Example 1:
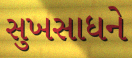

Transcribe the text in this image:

સુખસાધને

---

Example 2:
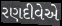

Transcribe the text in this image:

રણદીવેએ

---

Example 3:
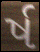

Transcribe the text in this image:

ર્ષ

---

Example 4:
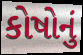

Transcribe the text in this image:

કોષોનું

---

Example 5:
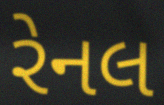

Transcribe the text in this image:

રેનલ